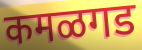
कमळगड